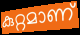
കുറ്റമാണ്